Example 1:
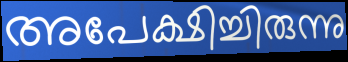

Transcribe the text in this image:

അപേക്ഷിച്ചിരുന്നു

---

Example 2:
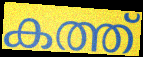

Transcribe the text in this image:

കത്ത്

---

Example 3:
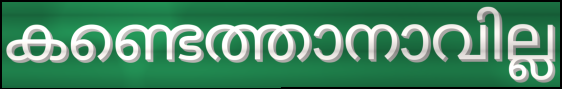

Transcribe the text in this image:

കണ്ടെത്താനാവില്ല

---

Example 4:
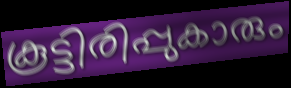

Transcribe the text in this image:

കൂട്ടിരിപ്പുകാരും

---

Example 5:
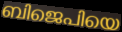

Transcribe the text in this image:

ബിജെപിയെ